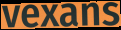
vexans